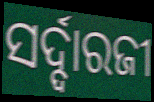
ସର୍ଦ୍ଦାରଜୀ